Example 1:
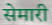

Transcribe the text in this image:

सेमारी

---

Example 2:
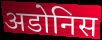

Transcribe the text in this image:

अडोनिस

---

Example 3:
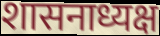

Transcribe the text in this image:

शासनाध्यक्ष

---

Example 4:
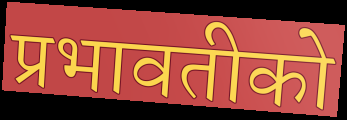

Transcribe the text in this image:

प्रभावतीको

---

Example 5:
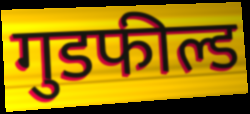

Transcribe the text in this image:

गुडफील्ड